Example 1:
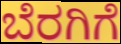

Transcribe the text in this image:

ಬೆರಗಿಗೆ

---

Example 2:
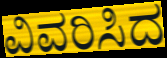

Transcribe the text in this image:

ವಿವರಿಸಿದ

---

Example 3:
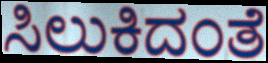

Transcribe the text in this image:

ಸಿಲುಕಿದಂತೆ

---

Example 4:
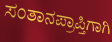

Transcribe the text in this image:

ಸಂತಾನಪ್ರಾಪ್ತಿಗಾಗಿ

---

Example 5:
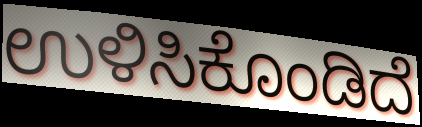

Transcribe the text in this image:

ಉಳಿಸಿಕೊಂಡಿದೆ